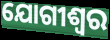
ଯୋଗୀଶ୍ୱର